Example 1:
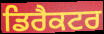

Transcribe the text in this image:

ਡਿਰੈਕਟਰ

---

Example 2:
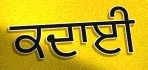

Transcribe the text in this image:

ਕਦਾਈ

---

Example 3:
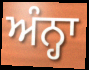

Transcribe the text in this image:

ਅੰਨ੍ਹ੍ਹਾ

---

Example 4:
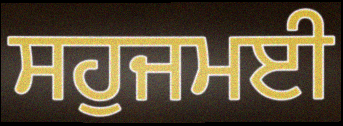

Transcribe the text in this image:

ਸਹੁਜਮਈ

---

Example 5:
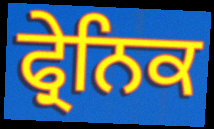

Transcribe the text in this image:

ਫ੍ਰੇਨਿਕ